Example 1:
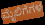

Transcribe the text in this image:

ಮೈಲಿಗೆಗಳ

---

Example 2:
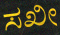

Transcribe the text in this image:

ಸಖೀ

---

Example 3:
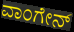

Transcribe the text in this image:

ವಾಂಗೇನ್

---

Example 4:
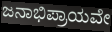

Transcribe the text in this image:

ಜನಾಭಿಪ್ರಾಯವೇ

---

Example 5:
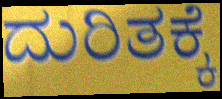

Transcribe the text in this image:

ದುರಿತಕ್ಕೆ